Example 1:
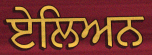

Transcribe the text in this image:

ਏਲਿਅਨ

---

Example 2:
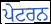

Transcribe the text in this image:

ਪੇਟਰਨ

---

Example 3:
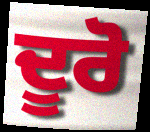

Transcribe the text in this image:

ਦੂਰੋ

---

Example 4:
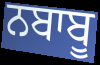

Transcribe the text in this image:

ਨਬਾਬੂ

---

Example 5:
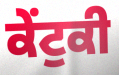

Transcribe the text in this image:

ਕੇਂਟੁਕੀ